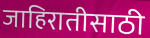
जाहिरातीसाठी